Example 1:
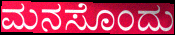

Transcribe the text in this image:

ಮನಸೊಂದು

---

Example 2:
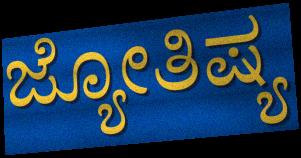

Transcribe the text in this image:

ಜ್ಯೋತಿಷ್ಯ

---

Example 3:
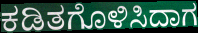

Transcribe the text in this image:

ಕಡಿತಗೊಳಿಸಿದಾಗ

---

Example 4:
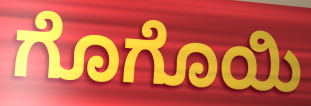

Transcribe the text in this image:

ಗೊಗೊಯಿ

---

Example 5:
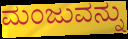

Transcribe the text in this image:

ಮಂಜುವನ್ನು